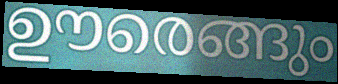
ഊരെങ്ങും